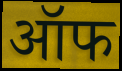
ऑफ